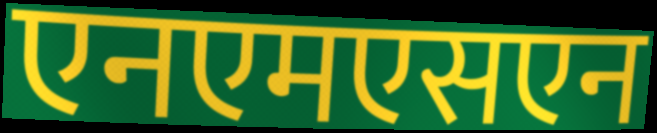
एनएमएसएन